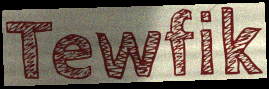
Tewfik